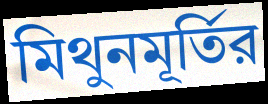
মিথুনমূর্তির